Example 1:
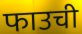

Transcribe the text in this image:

फाउची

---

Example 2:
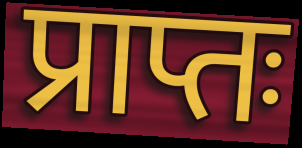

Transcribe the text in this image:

प्राप्तः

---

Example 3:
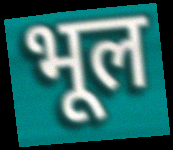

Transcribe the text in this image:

भूल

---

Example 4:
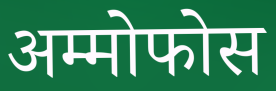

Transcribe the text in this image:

अम्मोफोस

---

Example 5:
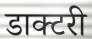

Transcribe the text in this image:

डाक्टरी